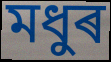
মধুৰ